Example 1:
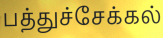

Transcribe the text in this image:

பத்துச்சேக்கல்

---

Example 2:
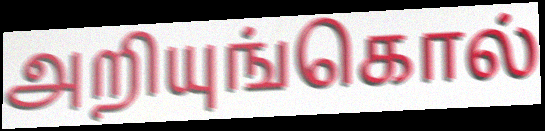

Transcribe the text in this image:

அறியுங்கொல்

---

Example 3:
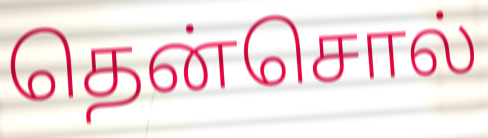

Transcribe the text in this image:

தென்சொல்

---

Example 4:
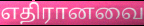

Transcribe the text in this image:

எதிரானவை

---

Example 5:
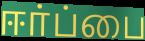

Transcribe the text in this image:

ஈர்ப்பை